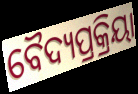
ବୈଦ୍ୟପ୍ରକ୍ରିୟା